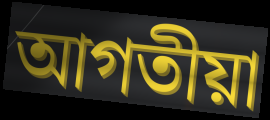
আগতীয়া